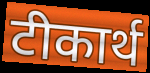
टीकार्थ